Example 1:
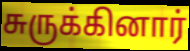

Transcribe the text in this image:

சுருக்கினார்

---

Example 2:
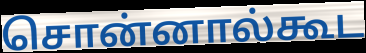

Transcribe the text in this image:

சொன்னால்கூட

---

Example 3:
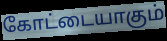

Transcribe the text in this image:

கோட்டையாகும்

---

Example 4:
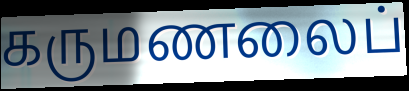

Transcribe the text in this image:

கருமணலைப்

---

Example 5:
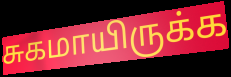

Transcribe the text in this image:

சுகமாயிருக்க